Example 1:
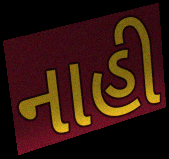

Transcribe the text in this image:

નાહી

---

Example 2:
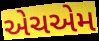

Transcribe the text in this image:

એચએમ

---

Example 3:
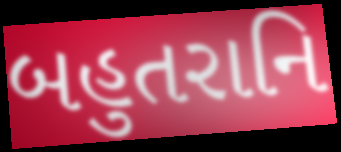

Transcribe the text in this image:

બહુતરાનિ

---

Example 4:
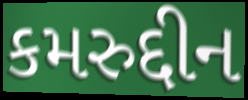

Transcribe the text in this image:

કમરુદ્દીન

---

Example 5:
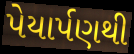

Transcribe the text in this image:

પેયાર્પણથી